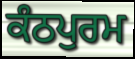
ਕੰਠਪੁਰਮ